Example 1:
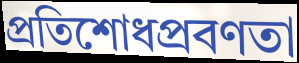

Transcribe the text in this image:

প্রতিশোধপ্রবণতা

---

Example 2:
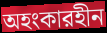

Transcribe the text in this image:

অহংকারহীন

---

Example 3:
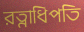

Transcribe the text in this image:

রত্নাধিপতি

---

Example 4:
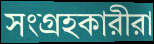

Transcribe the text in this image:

সংগ্রহকারীরা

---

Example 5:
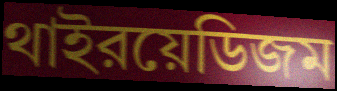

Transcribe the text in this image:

থাইরয়েডিজম